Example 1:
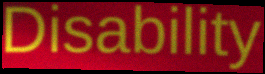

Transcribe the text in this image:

Disability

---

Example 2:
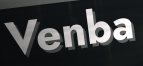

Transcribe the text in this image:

Venba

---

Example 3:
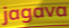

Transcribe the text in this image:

jagava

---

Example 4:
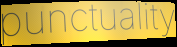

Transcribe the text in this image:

punctuality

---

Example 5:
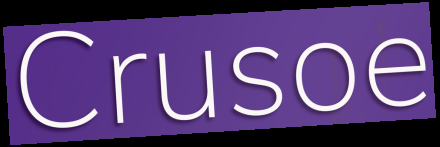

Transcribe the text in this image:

Crusoe